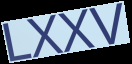
LXXV